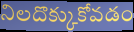
నిలదొక్కుకోవడం